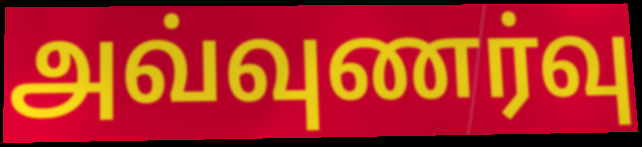
அவ்வுணர்வு